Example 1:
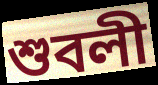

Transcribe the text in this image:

শুবলী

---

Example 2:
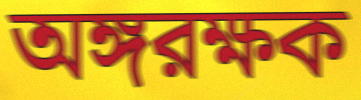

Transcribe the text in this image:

অঙ্গরক্ষক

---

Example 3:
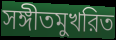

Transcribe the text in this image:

সঙ্গীতমুখরিত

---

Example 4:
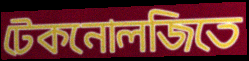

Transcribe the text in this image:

টেকনোলজিতে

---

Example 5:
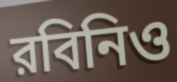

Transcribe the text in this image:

রবিনিও